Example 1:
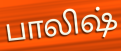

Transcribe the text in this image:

பாலிஷ்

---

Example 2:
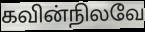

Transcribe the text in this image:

கவின்நிலவே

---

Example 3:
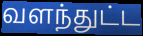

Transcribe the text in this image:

வளந்துட்ட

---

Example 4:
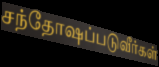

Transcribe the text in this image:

சந்தோஷப்படுவீர்கள்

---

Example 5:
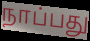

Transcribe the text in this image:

நாப்பது